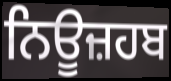
ਨਿਊਜ਼ਹਬ